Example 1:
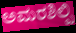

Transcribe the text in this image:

ಅಮರಶಿಲ್ಪಿ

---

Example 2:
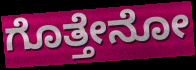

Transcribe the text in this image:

ಗೊತ್ತೇನೋ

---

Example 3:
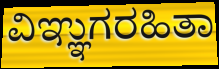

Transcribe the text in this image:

ವಿಞ್ಞುಗರಹಿತಾ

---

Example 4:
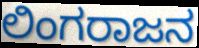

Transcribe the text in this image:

ಲಿಂಗರಾಜನ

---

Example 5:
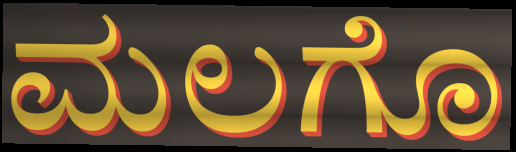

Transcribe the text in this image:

ಮಲಗೊ